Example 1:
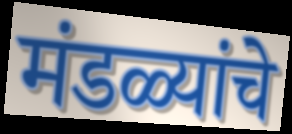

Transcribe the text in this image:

मंडळ्यांचे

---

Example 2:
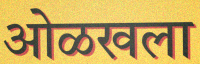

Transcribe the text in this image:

ओळखला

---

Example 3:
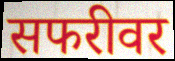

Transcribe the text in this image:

सफरीवर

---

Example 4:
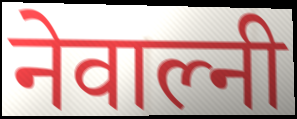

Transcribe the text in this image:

नेवाल्नी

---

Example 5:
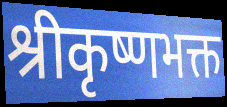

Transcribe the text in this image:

श्रीकृष्णभक्त